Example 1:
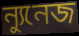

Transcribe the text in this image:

ন্যুনেজ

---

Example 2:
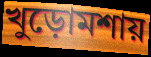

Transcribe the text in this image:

খুড়োমশায়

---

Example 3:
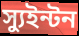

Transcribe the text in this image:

স্যুইন্টন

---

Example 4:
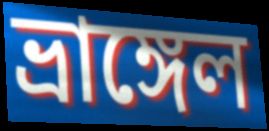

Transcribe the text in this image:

ভ্রাঙ্গেল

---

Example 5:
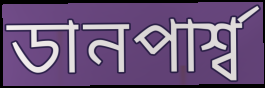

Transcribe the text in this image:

ডানপার্শ্ব